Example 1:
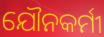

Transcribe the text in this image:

ଯୌନକର୍ମୀ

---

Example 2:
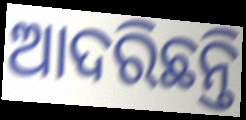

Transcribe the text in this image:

ଆଦରିଛନ୍ତି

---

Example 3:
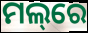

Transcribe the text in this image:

ମଲ୍‌ରେ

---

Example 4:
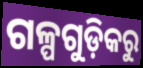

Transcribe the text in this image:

ଗଳ୍ପଗୁଡ଼ିକରୁ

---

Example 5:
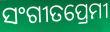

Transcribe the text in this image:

ସଂଗୀତପ୍ରେମୀ